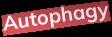
Autophagy